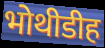
भोथीडीह